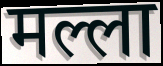
मल्ला